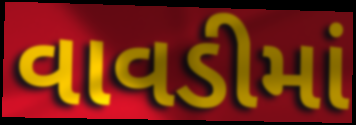
વાવડીમાં